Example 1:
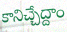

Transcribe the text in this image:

కానిచ్చేద్దాం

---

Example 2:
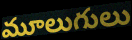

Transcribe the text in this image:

మూలుగులు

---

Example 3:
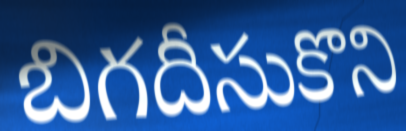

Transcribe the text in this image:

బిగదీసుకొని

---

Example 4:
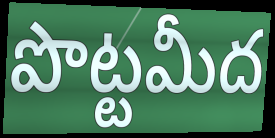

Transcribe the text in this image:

పొట్టమీద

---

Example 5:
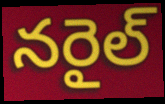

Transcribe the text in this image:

నరైల్